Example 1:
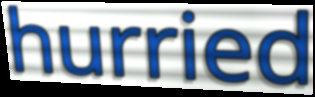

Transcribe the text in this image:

hurried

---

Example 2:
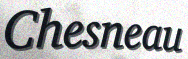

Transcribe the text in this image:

Chesneau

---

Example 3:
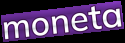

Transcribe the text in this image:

moneta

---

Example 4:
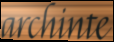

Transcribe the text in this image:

archinte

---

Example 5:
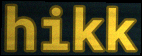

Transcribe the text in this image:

hikk